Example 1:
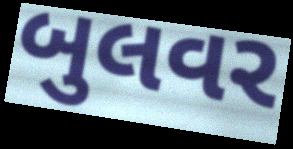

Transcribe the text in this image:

બુલવર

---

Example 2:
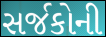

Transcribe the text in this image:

સર્જકોની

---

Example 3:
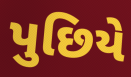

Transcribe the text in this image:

પુછિયે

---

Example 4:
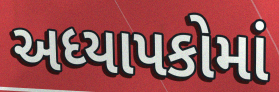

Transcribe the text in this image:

અધ્યાપકોમાં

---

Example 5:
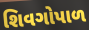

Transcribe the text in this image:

શિવગોપાળ